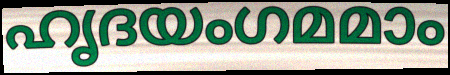
ഹൃദയംഗമമാം